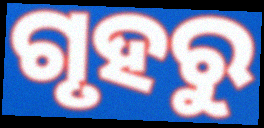
ଗୃହରୁ